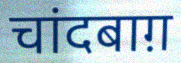
चांदबाग़